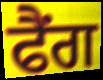
ਫੈਂਗ